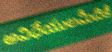
అవిధేయులమీదికి